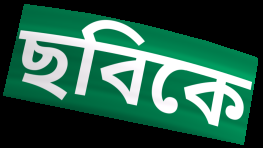
ছবিকে